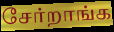
சேர்றாங்க